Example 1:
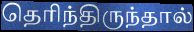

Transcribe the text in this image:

தெரிந்திருந்தால்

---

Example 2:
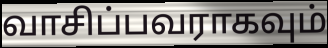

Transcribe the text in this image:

வாசிப்பவராகவும்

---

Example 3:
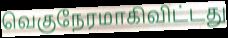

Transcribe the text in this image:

வெகுநேரமாகிவிட்டது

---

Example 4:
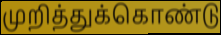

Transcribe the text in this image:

முறித்துக்கொண்டு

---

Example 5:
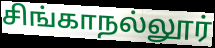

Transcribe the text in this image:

சிங்காநல்லூர்